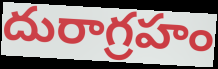
దురాగ్రహం